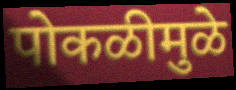
पोकळीमुळे